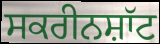
ਸਕਰੀਨਸ਼ਾੱਟ